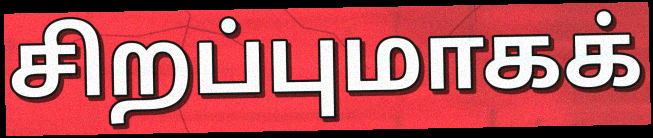
சிறப்புமாகக்